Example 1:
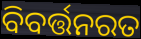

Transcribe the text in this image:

ବିବର୍ତ୍ତନରତ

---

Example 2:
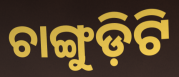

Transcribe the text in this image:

ଚାଙ୍ଗୁଡ଼ିଟି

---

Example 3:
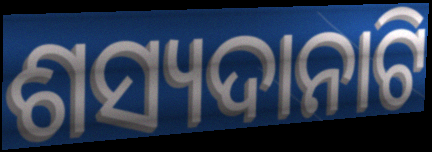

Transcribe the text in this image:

ଶସ୍ୟଦାନାଟି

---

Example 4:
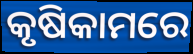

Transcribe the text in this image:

କୃଷିକାମରେ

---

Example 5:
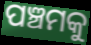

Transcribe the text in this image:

ପଞ୍ଚମକୁ